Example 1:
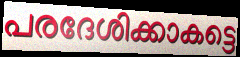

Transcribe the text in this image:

പരദേശിക്കാകട്ടെ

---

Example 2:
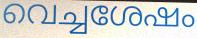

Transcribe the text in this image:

വെച്ചശേഷം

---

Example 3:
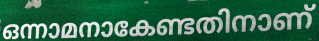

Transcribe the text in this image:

ഒന്നാമനാകേണ്ടതിനാണ്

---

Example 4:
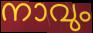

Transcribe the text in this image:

നാവും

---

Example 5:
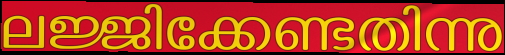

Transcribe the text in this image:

ലജ്ജിക്കേണ്ടതിന്നു